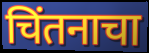
चिंतनाचा